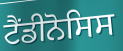
ਟੈਂਡੀਨੋਸਿਸ